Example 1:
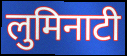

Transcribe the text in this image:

लुमिनाटी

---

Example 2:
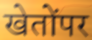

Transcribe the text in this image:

खेतोंपर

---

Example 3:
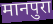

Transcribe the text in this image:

मानपुरा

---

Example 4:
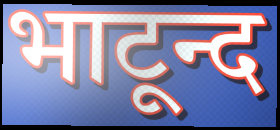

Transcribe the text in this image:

भाटून्द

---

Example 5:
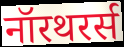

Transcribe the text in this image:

नॉरथरर्स